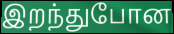
இறந்துபோன